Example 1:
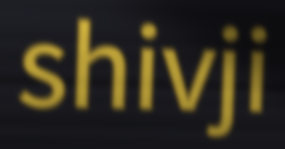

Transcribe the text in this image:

shivji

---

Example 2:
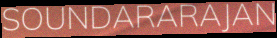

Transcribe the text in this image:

SOUNDARARAJAN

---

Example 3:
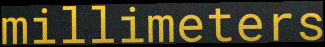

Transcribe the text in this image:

millimeters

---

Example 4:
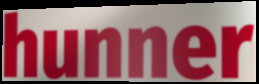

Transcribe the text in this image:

hunner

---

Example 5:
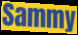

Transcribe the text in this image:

Sammy